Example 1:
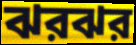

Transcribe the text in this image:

ঝরঝর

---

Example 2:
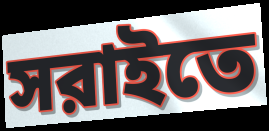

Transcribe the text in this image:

সরাইতে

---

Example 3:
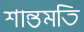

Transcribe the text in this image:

শান্তমতি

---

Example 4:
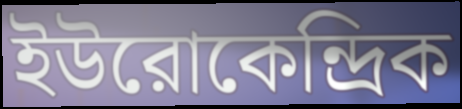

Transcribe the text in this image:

ইউরোকেন্দ্রিক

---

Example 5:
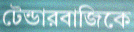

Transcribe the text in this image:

টেন্ডারবাজিকে